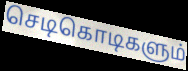
செடிகொடிகளும்